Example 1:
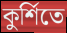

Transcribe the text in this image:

কুর্শিতে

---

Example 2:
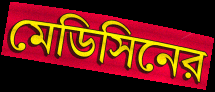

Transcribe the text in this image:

মেডিসিনের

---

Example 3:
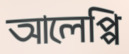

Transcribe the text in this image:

আলেপ্পি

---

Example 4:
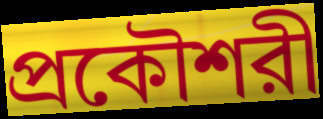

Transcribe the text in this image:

প্রকৌশরী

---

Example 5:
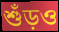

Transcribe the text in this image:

শুঁড়ও